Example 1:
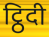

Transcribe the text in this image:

ट्ठिदी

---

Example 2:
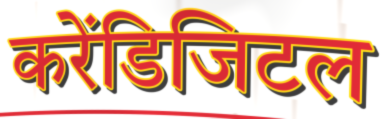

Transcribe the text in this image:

करेंडिजिटल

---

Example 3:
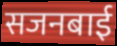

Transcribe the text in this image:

सजनबाई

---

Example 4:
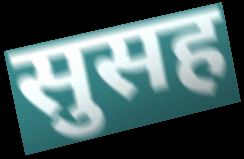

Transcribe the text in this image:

सुसह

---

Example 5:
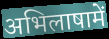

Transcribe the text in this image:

अभिलाषामें